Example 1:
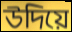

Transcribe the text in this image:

উদিয়ে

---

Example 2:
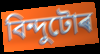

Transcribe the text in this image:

বিন্দুটোৰ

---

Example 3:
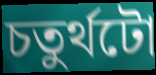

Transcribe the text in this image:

চতুৰ্থটো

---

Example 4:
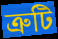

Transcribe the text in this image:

ত্ৰুটি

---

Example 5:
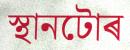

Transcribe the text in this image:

স্থানটোৰ